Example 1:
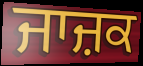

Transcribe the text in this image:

ਜਾਜ਼ਕ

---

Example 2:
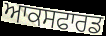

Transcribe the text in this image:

ਆਕਸਫਾਰਡ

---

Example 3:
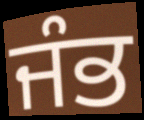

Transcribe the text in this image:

ਜੰਭ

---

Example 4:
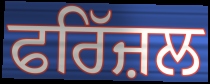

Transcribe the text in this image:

ਫਰਿੱਜ਼ਲ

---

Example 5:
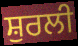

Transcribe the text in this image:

ਸ਼ੁਰਲੀ